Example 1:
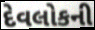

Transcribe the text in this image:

દેવલોકની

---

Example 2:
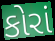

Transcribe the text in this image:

કોરાં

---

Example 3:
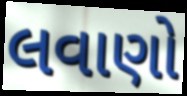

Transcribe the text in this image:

લવાણો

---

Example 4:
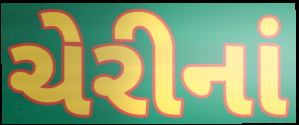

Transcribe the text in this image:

ચેરીનાં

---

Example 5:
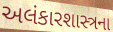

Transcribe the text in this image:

અલંકારશાસ્ત્રના